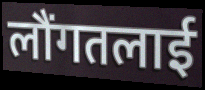
लौंगतलाई